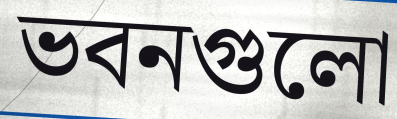
ভবনগুলো